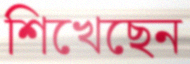
শিখেছেন